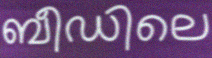
ബീഡിലെ